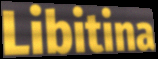
Libitina